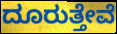
ದೂರುತ್ತೇವೆ